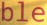
ble